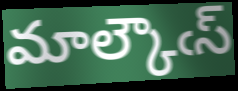
మాల్కౌఁస్